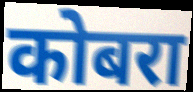
कोबरा